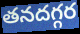
తనదగ్గర